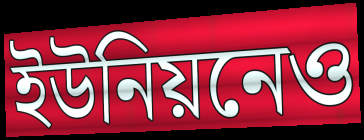
ইউনিয়নেও